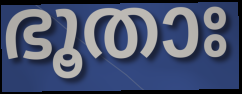
ഭൂതാഃ